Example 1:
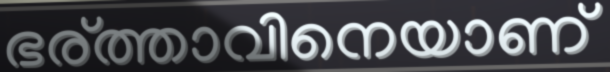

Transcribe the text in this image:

ഭര്ത്താവിനെയാണ്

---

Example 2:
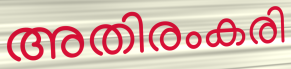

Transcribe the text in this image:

അതിരംകരി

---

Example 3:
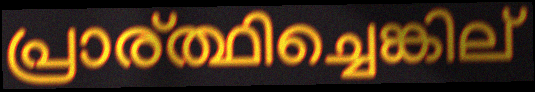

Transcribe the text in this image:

പ്രാര്ത്ഥിച്ചെങ്കില്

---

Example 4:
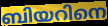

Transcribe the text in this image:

ബിയറിനെ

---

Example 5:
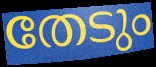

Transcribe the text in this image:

തേടും